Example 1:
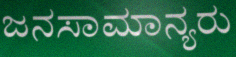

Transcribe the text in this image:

ಜನಸಾಮಾನ್ಯರು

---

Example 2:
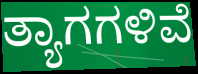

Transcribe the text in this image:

ತ್ಯಾಗಗಳಿವೆ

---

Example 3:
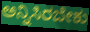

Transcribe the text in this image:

ಅನ್ನಿಸಿರಬೇಕು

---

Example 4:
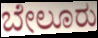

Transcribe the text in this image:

ಬೇಲೂರು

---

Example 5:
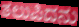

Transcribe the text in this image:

ತಲುಪಿದನು